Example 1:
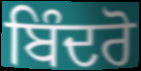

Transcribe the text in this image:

ਬਿੰਦਰੋ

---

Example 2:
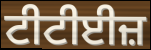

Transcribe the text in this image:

ਟੀਟੀਈਜ਼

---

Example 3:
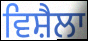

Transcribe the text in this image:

ਵਿਸ਼ੈਲਾ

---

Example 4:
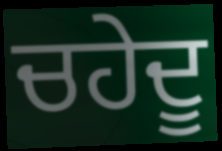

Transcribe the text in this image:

ਚਹੇਦੂ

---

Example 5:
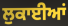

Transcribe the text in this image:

ਲੁਕਾਈਆਂ